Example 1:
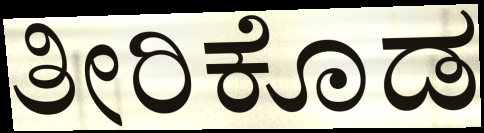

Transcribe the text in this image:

ತೀರಿಕೊಡ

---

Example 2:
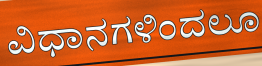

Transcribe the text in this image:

ವಿಧಾನಗಳಿಂದಲೂ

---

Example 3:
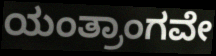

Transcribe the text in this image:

ಯಂತ್ರಾಂಗವೇ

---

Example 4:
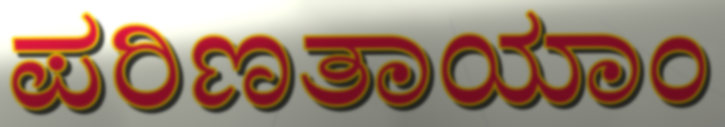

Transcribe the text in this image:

ಪರಿಣತಾಯಾಂ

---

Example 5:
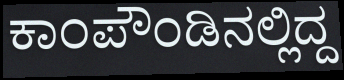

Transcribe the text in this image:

ಕಾಂಪೌಂಡಿನಲ್ಲಿದ್ದ